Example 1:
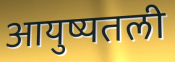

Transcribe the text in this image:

आयुष्यतली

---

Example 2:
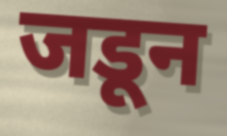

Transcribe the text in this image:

जडून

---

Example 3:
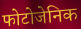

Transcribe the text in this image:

फोटोजेनिक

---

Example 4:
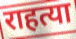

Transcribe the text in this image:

राहत्या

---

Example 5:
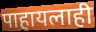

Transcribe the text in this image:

पाहायलाही